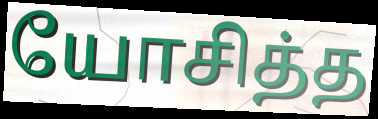
யோசித்த